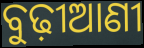
ବୁଢ଼ୀଆଣୀ